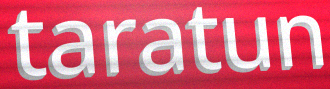
taratun